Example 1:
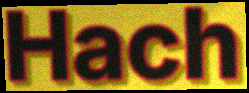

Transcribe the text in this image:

Hach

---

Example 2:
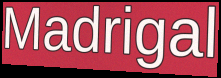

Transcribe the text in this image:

Madrigal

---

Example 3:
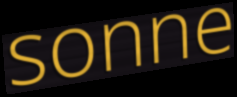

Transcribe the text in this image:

sonne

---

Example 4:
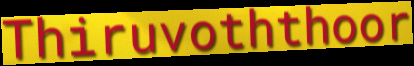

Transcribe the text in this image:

Thiruvoththoor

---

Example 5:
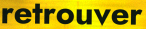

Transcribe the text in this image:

retrouver